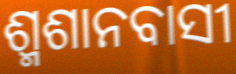
ଶ୍ମଶାନବାସୀ